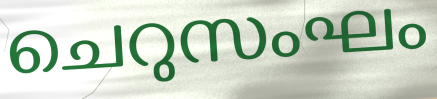
ചെറുസംഘം